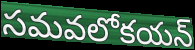
సమవలోకయన్